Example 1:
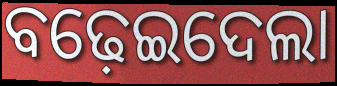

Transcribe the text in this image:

ବଢ଼େଇଦେଲା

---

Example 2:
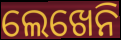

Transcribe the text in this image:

ଲେଖେନି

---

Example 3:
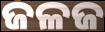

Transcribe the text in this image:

ଜଳଜ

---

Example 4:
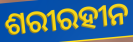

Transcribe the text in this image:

ଶରୀରହୀନ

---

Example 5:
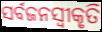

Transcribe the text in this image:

ସର୍ବଜନସ୍ୱୀକୃତି